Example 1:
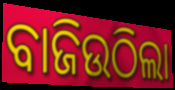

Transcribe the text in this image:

ବାଜିଉଠିଲା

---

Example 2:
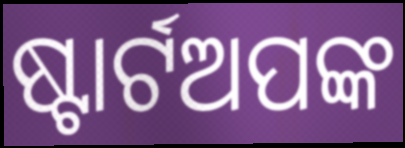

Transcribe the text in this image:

ଷ୍ଟାର୍ଟଅପଙ୍କ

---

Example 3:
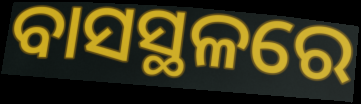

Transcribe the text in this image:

ବାସସ୍ଥଳରେ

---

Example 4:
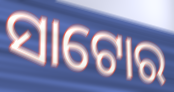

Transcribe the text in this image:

ସାଟୋର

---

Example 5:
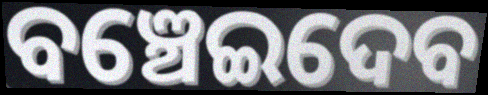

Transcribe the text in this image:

ବଞ୍ଚେଇଦେବ